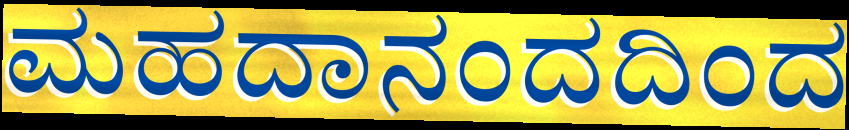
ಮಹದಾನಂದದಿಂದ